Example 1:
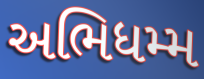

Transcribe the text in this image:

અભિધમ્મ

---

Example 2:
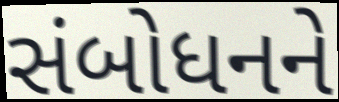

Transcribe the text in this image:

સંબોધનને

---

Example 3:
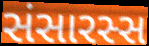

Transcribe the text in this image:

સંસારસ્સ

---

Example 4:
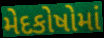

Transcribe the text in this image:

મેદકોષોમાં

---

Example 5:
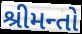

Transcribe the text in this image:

શ્રીમન્તો